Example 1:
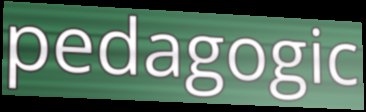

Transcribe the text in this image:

pedagogic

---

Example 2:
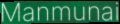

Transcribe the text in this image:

Manmunai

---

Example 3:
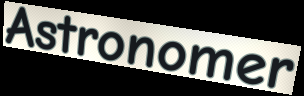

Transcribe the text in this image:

Astronomer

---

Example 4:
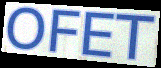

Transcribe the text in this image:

OFET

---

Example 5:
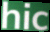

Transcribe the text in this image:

hic